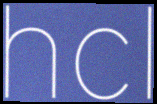
hcl